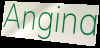
Angina